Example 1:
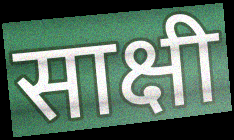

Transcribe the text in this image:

साक्षी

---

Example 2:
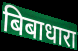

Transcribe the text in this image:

बिबाधारा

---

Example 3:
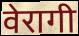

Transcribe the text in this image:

वेरागी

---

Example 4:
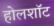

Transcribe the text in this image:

होलशॉट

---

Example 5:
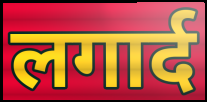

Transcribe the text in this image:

लगार्द